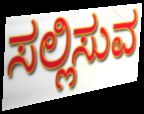
ಸಲ್ಲಿಸುವ